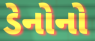
ડેનોનો